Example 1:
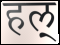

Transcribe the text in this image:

हल्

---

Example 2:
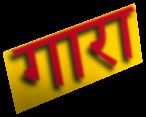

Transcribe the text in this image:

गारा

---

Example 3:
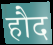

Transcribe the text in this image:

हौद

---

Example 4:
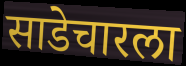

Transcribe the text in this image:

साडेचारला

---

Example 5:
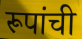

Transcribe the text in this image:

रूपांची